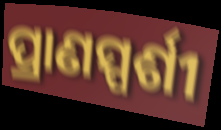
ପ୍ରାଣସ୍ପର୍ଶୀ